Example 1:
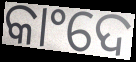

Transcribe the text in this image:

କାଂଦେ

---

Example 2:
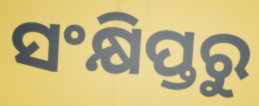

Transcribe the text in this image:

ସଂକ୍ଷିପ୍ତରୁ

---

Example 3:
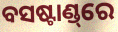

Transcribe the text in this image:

ବସଷ୍ଟାଣ୍ଡ୍‌ରେ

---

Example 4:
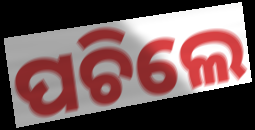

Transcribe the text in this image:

ପଚିଲେ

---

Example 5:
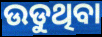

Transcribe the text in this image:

ଉଡୁଥିବା